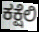
ಕಕ್ಷೆಲಿ